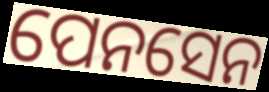
ପେନସେନ